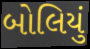
બોલિયું